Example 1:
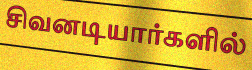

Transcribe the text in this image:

சிவனடியார்களில்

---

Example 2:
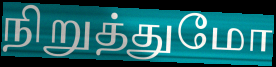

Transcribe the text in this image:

நிறுத்துமோ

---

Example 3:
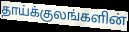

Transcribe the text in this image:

தாய்க்குலங்களின்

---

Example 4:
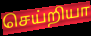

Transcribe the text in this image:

செய்றியா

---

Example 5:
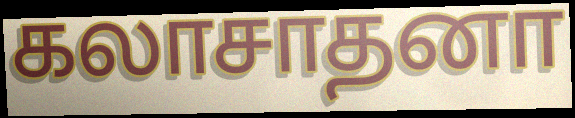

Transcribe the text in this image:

கலாசாதனா